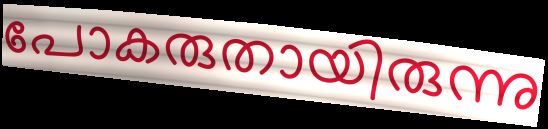
പോകരുതായിരുന്നു